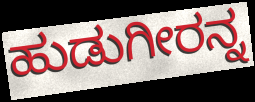
ಹುಡುಗೀರನ್ನ